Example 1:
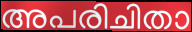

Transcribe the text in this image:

അപരിചിതാ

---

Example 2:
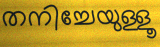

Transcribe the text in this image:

തനിച്ചേയുള്ളൂ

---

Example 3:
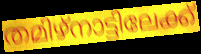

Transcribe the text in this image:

തമിഴ്നാട്ടിലേക്ക്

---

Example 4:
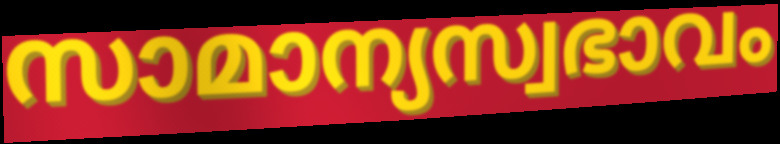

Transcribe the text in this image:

സാമാന്യസ്വഭാവം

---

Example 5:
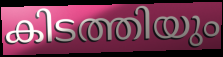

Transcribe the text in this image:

കിടത്തിയും